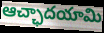
ఆచ్ఛాదయామి